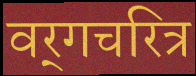
वर्गचरित्र